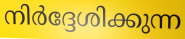
നിർദ്ദേശിക്കുന്ന